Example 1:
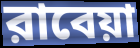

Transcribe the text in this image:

রাবেয়া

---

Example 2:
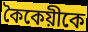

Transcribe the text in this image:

কৈকেয়ীকে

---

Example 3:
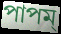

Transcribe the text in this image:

পাপম্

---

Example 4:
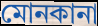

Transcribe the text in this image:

মোনকানা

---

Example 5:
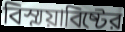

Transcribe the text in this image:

বিস্ময়াবিষ্টের